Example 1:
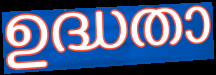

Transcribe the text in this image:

ഉദ്ധതാ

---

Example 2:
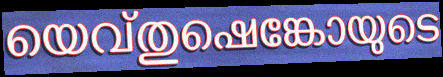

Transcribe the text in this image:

യെവ്തുഷെങ്കോയുടെ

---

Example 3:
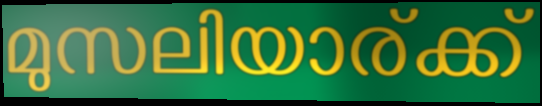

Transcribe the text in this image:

മുസലിയാര്ക്ക്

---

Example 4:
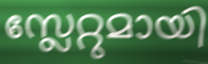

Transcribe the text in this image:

സ്ലേറ്റുമായി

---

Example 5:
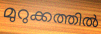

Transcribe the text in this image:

മുറുക്കത്തിൽ